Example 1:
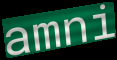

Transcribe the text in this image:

amni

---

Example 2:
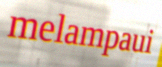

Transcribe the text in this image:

melampaui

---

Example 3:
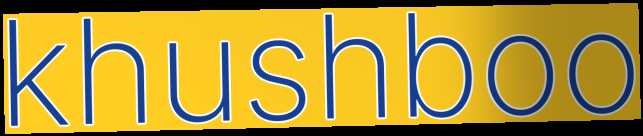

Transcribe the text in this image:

khushboo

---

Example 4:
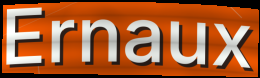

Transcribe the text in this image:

Ernaux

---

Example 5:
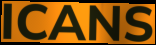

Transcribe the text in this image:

ICANS